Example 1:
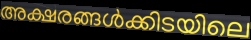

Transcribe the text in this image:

അക്ഷരങ്ങൾക്കിടയിലെ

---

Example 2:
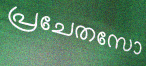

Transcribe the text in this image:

പ്രചേതസോ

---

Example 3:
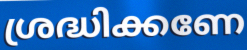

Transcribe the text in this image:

ശ്രദ്ധിക്കണേ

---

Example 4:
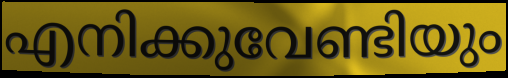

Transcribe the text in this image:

എനിക്കുവേണ്ടിയും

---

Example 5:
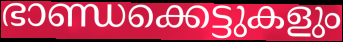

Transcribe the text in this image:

ഭാണ്ഡക്കെട്ടുകളും